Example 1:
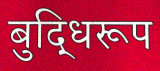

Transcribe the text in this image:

बुद्धिरूप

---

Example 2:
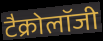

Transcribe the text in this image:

टैक्रोलॉजी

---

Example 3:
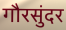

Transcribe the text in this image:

गौरसुंदर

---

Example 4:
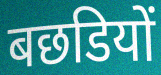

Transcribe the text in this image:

बछडियों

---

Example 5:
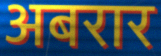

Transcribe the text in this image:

अबरार